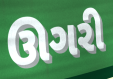
ઊગરી